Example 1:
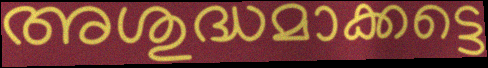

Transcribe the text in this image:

അശുദ്ധമാക്കട്ടെ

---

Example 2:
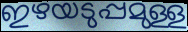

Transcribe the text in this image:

ഇഴയടുപ്പമുള്ള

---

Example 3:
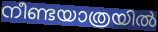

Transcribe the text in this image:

നീണ്ടയാത്രയിൽ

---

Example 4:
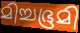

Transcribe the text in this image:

മിച്ചഭൂമി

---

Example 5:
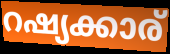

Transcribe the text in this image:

റഷ്യക്കാര്